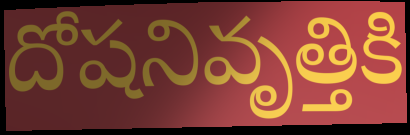
దోషనివృత్తికి